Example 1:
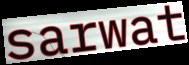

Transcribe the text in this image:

sarwat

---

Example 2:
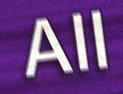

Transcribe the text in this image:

All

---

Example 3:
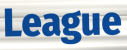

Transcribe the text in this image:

League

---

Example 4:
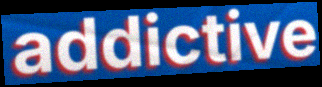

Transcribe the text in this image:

addictive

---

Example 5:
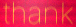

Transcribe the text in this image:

thank